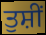
ਤੁਸ਼ੀਂ